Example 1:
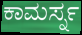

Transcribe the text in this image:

ಕಾಮರ್ಸ್ನ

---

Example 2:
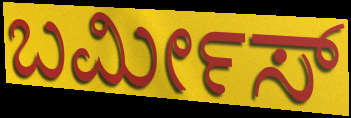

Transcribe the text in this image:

ಬರ್ಮೀಸ್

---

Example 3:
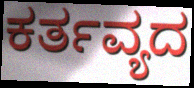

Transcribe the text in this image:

ಕರ್ತವ್ಯದ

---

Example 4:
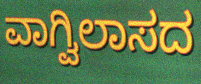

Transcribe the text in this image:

ವಾಗ್ವಿಲಾಸದ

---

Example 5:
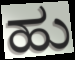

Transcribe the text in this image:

ಹು